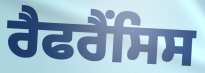
ਰੈਫਰੈਂਸਿਸ